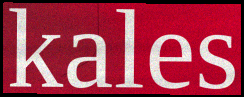
kales